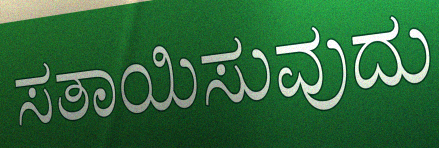
ಸತಾಯಿಸುವುದು